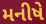
મનીષે